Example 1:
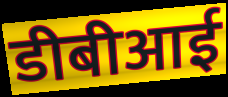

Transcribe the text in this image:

डीबीआई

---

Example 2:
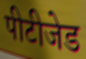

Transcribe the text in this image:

पीटीजेड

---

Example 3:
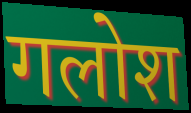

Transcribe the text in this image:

गलोश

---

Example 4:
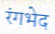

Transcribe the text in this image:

रंगभेद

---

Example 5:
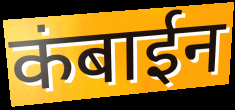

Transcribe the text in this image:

कंबाईन